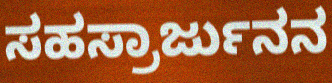
ಸಹಸ್ರಾರ್ಜುನನ